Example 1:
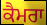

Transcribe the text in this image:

ਕੈਮਰਾ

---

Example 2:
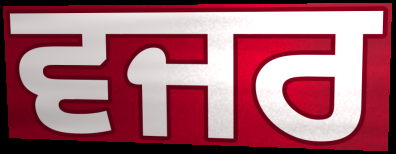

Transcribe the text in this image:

ਵਜਰ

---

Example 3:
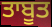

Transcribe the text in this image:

ਤਾਬੂਤ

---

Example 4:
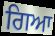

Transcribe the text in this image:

ਗਿਆ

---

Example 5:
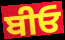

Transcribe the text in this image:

ਬੀਓ